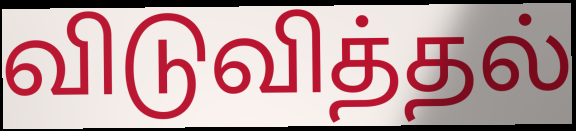
விடுவித்தல்